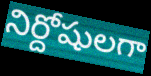
నిర్దోషులగా